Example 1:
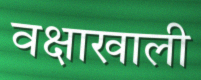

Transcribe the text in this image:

वक्षाखाली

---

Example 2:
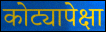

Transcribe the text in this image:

कोट्यापेक्षा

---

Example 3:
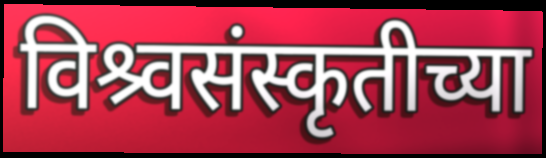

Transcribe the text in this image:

विश्र्वसंस्कृतीच्या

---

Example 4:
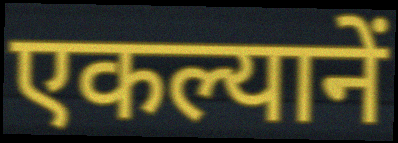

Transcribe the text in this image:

एकल्यानें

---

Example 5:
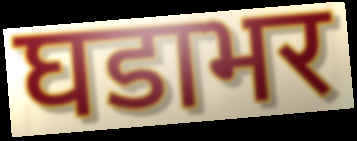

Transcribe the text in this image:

घडाभर